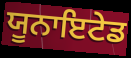
ਯੂਨਾਇਟੇਡ